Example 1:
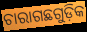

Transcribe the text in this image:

ଚାରାଗଛଗୁଡ଼ିକ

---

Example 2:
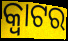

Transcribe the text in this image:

କ୍ୱାଟର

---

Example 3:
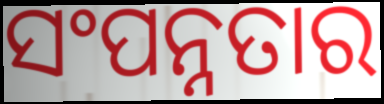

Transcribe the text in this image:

ସଂପନ୍ନତାର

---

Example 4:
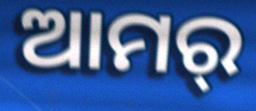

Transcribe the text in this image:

ଆମର୍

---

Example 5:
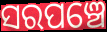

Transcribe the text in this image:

ସରପଞ୍ଚେ